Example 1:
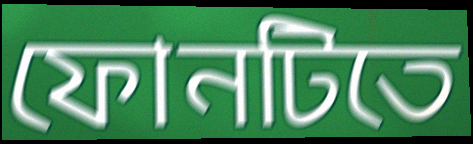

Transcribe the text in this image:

ফোনটিতে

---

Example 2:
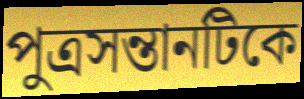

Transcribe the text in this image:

পুত্রসন্তানটিকে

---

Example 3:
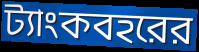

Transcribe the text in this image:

ট্যাংকবহরের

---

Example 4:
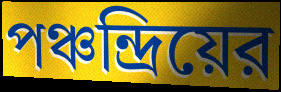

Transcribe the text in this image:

পঞ্চন্দ্রিয়ের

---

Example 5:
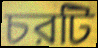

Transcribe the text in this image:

চরটি